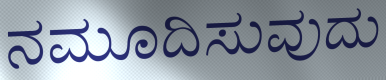
ನಮೂದಿಸುವುದು